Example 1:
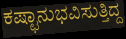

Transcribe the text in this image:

ಕಷ್ಟಾನುಭವಿಸುತ್ತಿದ್ದ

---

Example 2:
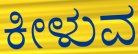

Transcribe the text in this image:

ಕೀಳುವ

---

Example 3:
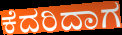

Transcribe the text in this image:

ಕೆದರಿದಾಗ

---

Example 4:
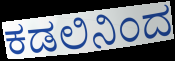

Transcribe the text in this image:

ಕಡಲಿನಿಂದ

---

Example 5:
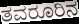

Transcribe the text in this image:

ತವರೂರಿನ